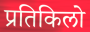
प्रतिकिलो